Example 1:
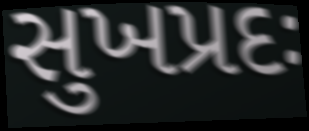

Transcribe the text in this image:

સુખપ્રદઃ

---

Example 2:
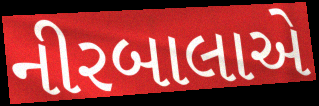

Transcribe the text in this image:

નીરબાલાએ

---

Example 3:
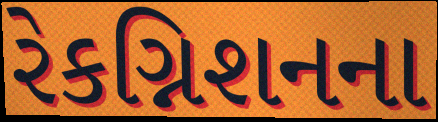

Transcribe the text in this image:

રેકગ્નિશનના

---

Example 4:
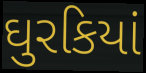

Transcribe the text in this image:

ઘુરકિયાં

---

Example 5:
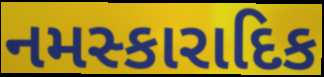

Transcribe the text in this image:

નમસ્કારાદિક